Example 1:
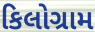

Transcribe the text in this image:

કિલોગ્રામ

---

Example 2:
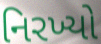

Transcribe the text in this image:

નિરખ્યો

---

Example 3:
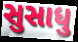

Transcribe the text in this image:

સુસાધુ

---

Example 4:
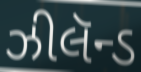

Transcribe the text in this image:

ઝીલૅન્ડ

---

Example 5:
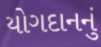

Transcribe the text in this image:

યોગદાનનું